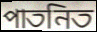
পাতনিত